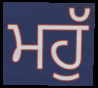
ਮਹੁੱ